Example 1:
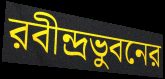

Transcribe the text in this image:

রবীন্দ্রভুবনের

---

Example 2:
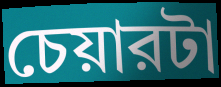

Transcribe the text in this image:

চেয়ারটা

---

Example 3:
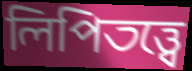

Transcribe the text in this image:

লিপিতত্ত্বে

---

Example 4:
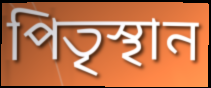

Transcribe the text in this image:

পিতৃস্থান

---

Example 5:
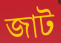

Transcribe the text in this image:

জাট